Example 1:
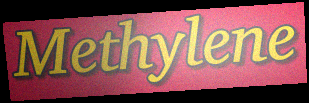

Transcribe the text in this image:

Methylene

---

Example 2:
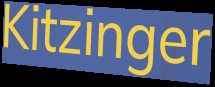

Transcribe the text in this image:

Kitzinger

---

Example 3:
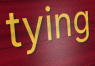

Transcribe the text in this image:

tying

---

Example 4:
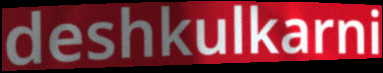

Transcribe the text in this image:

deshkulkarni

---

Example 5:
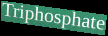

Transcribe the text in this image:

Triphosphate